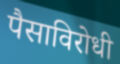
पैसाविरोधी